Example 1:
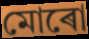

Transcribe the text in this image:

মোৰো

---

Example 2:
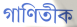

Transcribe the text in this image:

গাণিতীক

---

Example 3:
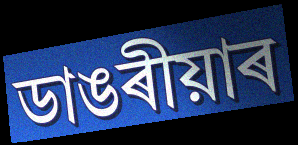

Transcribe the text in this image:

ডাঙৰীয়াৰ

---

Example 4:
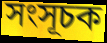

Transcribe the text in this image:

সংসূচক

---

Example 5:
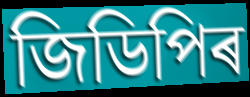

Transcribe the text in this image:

জিডিপিৰ